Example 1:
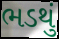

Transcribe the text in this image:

ભડથું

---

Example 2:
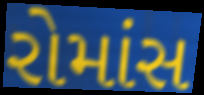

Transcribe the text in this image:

રોમાંસ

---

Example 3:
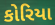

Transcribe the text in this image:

કોરિયા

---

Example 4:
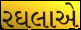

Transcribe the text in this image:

રઘલાએ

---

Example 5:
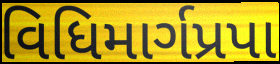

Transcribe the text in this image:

વિધિમાર્ગપ્રપા